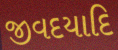
જીવદયાદિ